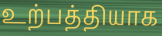
உற்பத்தியாக